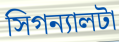
সিগন্যালটা